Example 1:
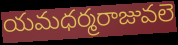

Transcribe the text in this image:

యమధర్మరాజువలె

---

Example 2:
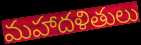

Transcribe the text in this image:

మహాదళితులు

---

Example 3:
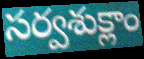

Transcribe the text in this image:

సర్వశుక్లాం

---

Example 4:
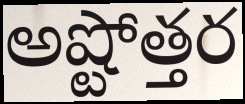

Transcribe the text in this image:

అష్టోత్తర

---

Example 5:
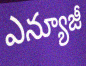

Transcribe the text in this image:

ఎన్యూజీ